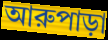
আরুপাড়া